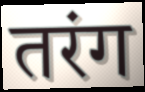
तरंग